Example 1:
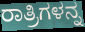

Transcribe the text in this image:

ರಾತ್ರಿಗಳನ್ನ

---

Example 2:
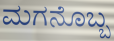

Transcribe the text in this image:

ಮಗನೊಬ್ಬ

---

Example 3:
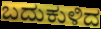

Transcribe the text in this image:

ಬದುಕುಳಿದ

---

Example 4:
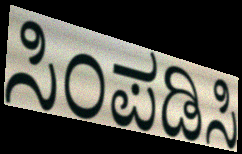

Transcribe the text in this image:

ಸಿಂಪಡಿಸಿ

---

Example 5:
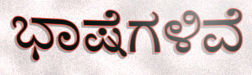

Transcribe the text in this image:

ಭಾಷೆಗಳಿವೆ